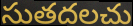
సుతదలచు